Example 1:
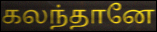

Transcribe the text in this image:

கலந்தானே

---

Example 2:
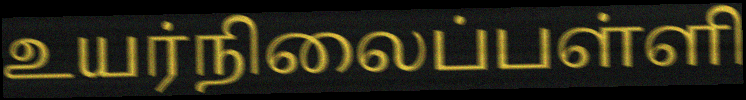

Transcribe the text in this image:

உயர்நிலைப்பள்ளி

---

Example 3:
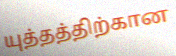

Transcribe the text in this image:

யுத்தத்திற்கான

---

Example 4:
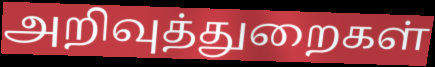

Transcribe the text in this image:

அறிவுத்துறைகள்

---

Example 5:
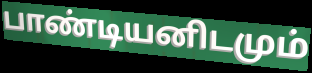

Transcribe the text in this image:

பாண்டியனிடமும்